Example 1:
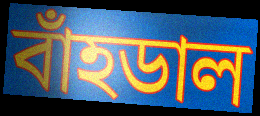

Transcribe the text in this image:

বাঁহডাল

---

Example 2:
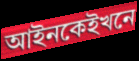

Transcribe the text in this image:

আইনকেইখনে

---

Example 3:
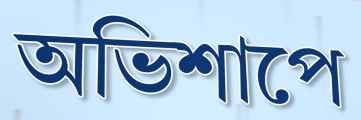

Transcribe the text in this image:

অভিশাপে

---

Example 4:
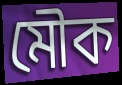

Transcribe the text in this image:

মৌক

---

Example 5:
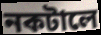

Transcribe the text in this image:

নকটালে